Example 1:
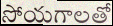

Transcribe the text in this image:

సోయగాలతో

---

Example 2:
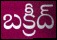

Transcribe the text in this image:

బక్రీద్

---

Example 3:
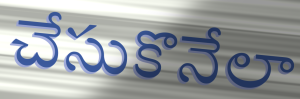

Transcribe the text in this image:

చేసుకొనేలా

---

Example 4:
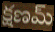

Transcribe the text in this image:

క్షణమ్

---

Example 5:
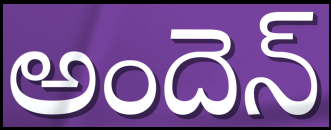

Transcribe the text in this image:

అందెన్